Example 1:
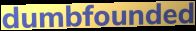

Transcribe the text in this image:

dumbfounded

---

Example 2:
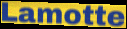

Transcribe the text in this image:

Lamotte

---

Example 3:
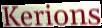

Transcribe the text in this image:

Kerions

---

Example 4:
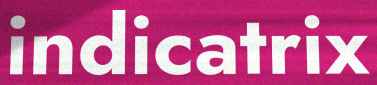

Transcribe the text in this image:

indicatrix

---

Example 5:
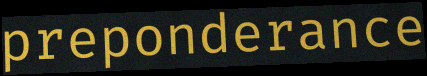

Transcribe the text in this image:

preponderance